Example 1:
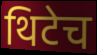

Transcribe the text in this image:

थिटेच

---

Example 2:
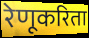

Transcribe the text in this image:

रेणूकरिता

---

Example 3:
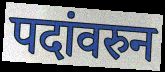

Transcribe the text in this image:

पदांवरुन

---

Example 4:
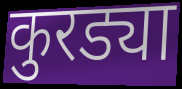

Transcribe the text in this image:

कुरड्या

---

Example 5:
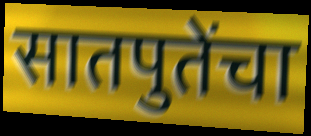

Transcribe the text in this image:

सातपुतेंचा